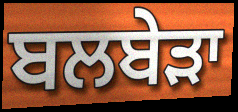
ਬਲਬੇਡ਼ਾ